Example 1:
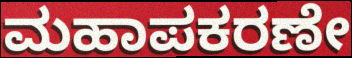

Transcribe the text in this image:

ಮಹಾಪಕರಣೇ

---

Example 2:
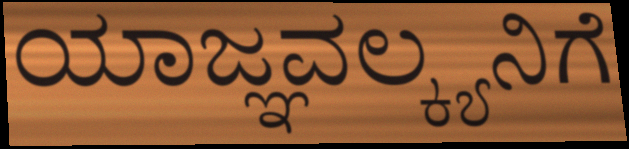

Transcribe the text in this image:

ಯಾಜ್ಞವಲ್ಕ್ಯನಿಗೆ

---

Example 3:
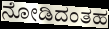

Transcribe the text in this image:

ನೋಡಿದಂತಹ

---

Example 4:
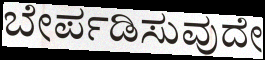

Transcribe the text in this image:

ಬೇರ್ಪಡಿಸುವುದೇ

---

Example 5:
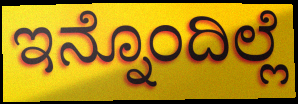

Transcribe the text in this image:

ಇನ್ನೊಂದಿಲ್ಲೆ